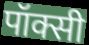
पॉक्सी